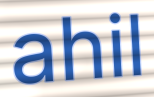
ahil